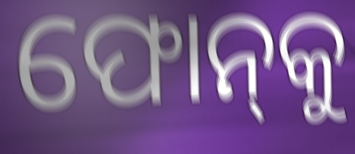
ଫୋନ୍‌କୁ